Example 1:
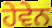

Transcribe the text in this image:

ਹੇਵੇਨ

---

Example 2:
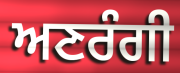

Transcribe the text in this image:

ਅਣਰੰਗੀ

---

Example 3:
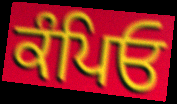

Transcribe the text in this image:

ਕੰਪਿਓ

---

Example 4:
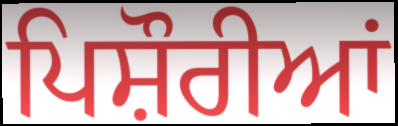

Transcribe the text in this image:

ਪਿਸ਼ੌਰੀਆਂ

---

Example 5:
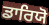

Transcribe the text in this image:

ਡਾਰਿਯੋ